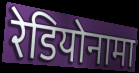
रेडियोनामा